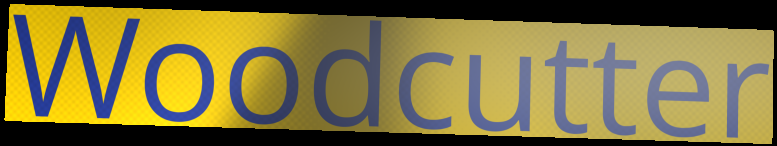
Woodcutter